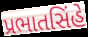
પ્રભાતસિંહે